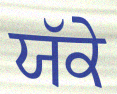
ਯੱਕੇ